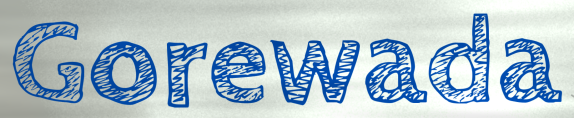
Gorewada